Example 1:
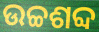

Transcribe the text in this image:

ଉଚ୍ଚଶବ୍ଦ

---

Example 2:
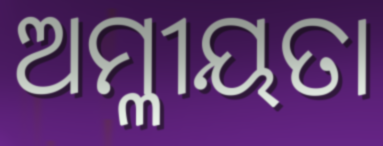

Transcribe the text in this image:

ଅମ୍ଳୀୟତା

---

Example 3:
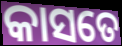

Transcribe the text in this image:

କାସତେ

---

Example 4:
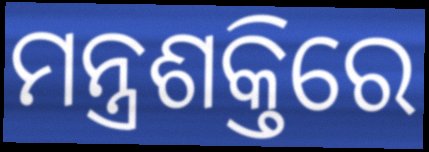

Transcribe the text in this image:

ମନ୍ତ୍ରଶକ୍ତିରେ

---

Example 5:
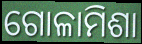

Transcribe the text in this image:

ଗୋଳାମିଶା